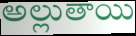
అల్లుతాయి